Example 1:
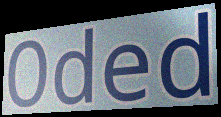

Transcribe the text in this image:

Oded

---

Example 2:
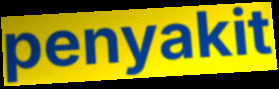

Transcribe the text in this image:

penyakit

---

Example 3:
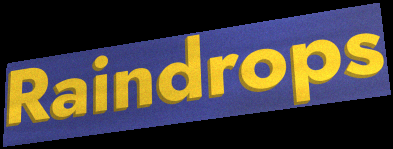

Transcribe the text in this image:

Raindrops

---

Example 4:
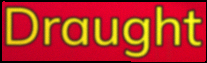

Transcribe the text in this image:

Draught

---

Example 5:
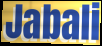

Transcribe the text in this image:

Jabali